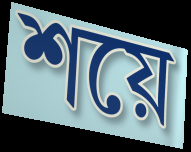
শয়ে